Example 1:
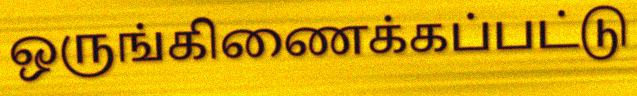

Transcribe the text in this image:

ஒருங்கிணைக்கப்பட்டு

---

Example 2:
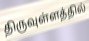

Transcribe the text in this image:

திருவுள்ளத்தில்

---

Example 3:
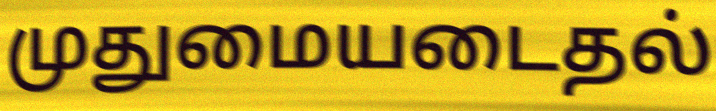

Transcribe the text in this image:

முதுமையடைதல்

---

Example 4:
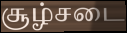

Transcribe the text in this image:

சூழ்சடை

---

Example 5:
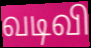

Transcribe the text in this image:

வடிவி